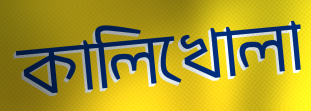
কালিখোলা